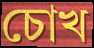
চোখ